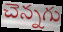
చెన్నగు